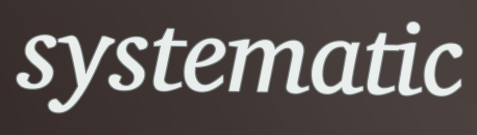
systematic